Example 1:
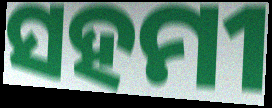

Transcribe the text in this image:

ସହମୀ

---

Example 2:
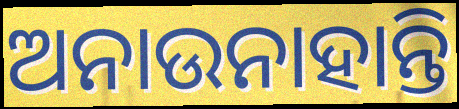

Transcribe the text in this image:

ଅନାଉନାହାନ୍ତି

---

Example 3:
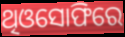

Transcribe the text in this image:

ଥିଓସୋଫିରେ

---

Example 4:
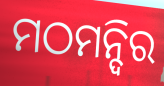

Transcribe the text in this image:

ମଠମନ୍ଦିର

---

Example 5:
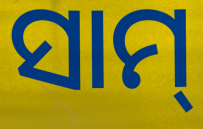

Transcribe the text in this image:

ସାମ୍